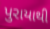
પુરાયાથી